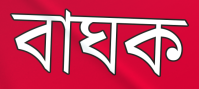
বাঘক